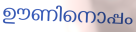
ഊണിനൊപ്പം